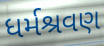
ધર્મશ્રવણ